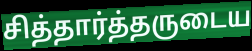
சித்தார்த்தருடைய